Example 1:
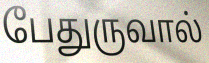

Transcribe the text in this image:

பேதுருவால்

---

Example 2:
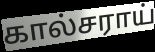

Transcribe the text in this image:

கால்சராய்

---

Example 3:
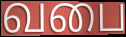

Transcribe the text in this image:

வபை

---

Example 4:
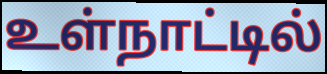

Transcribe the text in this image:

உள்நாட்டில்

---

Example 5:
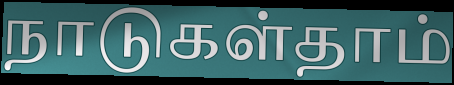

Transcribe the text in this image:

நாடுகள்தாம்